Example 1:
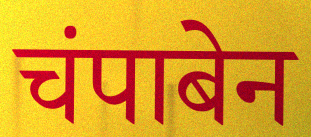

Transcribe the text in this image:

चंपाबेन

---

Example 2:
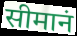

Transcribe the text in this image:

सीमानं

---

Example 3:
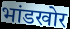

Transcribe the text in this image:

भांडखोर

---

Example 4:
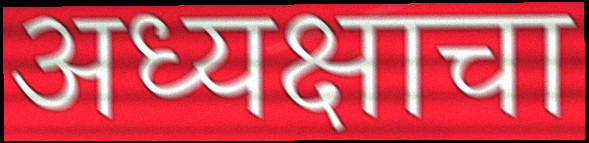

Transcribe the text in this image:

अध्यक्षाचा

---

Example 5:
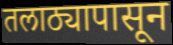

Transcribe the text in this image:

तलाठ्यापासून